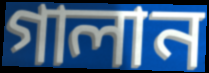
গালান